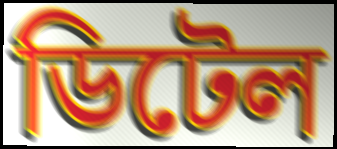
ডিটেল